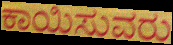
ಕಾಯಿಸುವರು